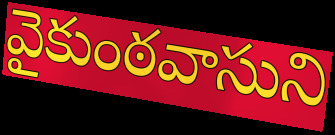
వైకుంఠవాసుని